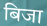
बिजा